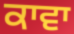
ਕਾਵਾ